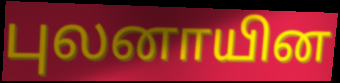
புலனாயின